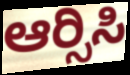
ಆರ್‍ಸಿಸಿ